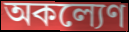
অকল্যেণ